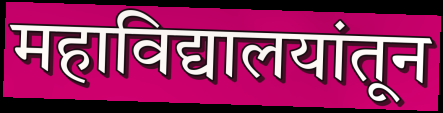
महाविद्यालयांतून